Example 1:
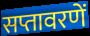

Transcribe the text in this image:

सप्तावरणें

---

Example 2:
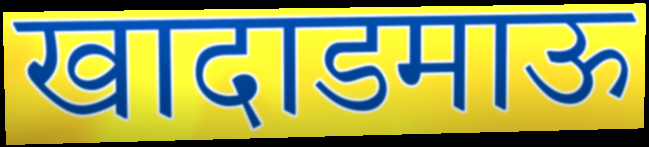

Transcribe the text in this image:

खादाडमाऊ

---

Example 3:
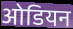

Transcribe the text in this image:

ओडियन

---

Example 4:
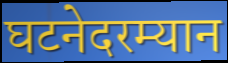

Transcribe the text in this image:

घटनेदरम्यान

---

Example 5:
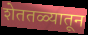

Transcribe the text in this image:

शेततळ्यातून